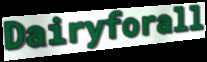
Dairyforall